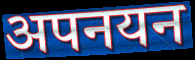
अपनयन